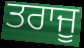
ਤਰਾਜੂ